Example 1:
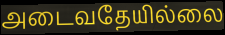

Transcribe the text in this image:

அடைவதேயில்லை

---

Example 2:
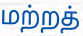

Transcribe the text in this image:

மற்றத்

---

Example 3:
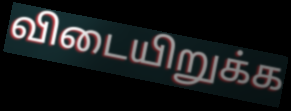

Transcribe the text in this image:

விடையிறுக்க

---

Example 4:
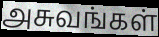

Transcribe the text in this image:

அசுவங்கள்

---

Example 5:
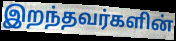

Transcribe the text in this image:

இறந்தவர்களின்